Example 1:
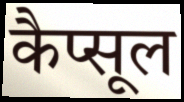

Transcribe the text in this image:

कैप्सूल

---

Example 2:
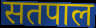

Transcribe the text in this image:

सतपाल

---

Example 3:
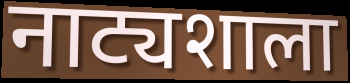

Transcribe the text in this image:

नाट्यशाला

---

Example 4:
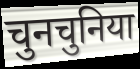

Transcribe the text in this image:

चुनचुनिया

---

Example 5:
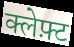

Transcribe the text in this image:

क्लेफ़्ट